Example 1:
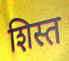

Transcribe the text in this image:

शिस्त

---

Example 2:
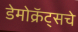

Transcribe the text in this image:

डेमोक्रॅट्सचे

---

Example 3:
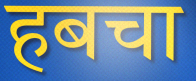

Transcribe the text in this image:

हबचा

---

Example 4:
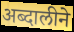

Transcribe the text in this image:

अब्दालीने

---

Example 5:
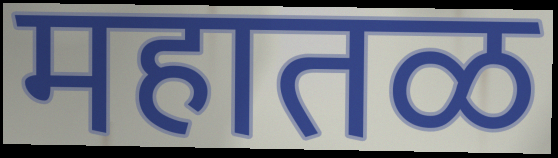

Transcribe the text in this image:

महातळ